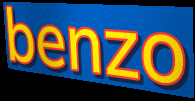
benzo